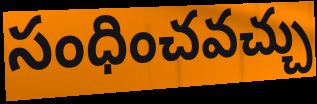
సంధించవచ్చు